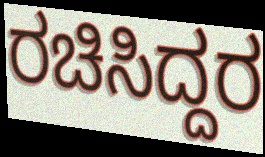
ರಚಿಸಿದ್ದರ